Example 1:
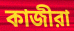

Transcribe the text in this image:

কাজীরা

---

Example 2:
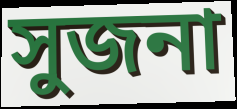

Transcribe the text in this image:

সুজনা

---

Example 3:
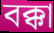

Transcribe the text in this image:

বক্কা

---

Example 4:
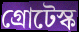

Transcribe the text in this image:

গ্রোটেস্ক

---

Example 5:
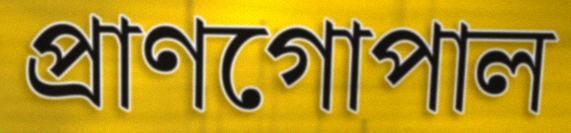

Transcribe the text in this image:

প্রাণগোপাল